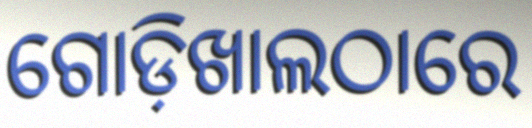
ଗୋଡ଼ିଖାଲଠାରେ